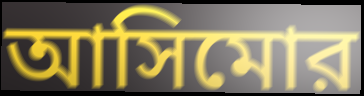
আসিমোর